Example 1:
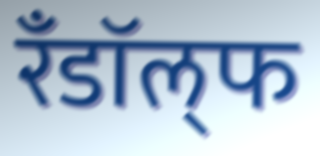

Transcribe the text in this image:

रँडॉल्फ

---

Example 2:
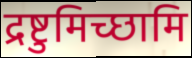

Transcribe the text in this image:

द्रष्टुमिच्छामि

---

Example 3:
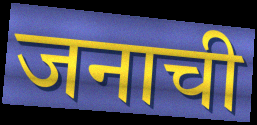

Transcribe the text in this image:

जनाची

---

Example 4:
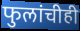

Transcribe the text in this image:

फुलांचीही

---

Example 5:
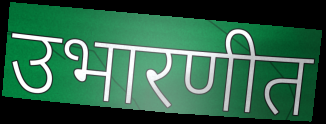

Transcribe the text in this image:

उभारणीत